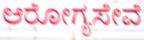
ಆರೋಗ್ಯಸೇವೆ